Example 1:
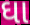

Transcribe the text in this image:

ઘા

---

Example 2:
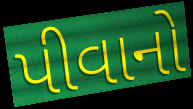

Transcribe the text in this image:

પીવાનો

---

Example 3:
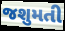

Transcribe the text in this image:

જશુમતી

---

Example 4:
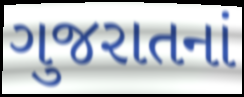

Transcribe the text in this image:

ગુજરાતનાં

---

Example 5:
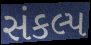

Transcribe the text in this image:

સંકલ્પ